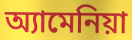
অ্যামেনিয়া